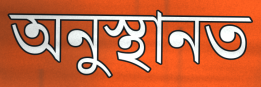
অনুস্থানত